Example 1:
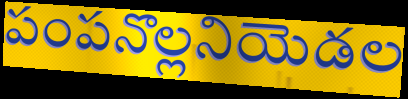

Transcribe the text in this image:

పంపనొల్లనియెడల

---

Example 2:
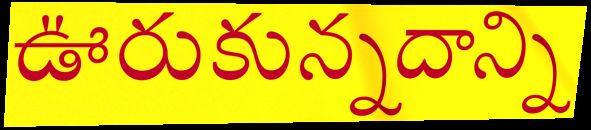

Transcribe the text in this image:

ఊరుకున్నదాన్ని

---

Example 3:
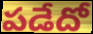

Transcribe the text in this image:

పడేదో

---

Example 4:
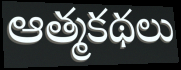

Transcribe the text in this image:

ఆత్మకథలు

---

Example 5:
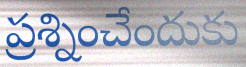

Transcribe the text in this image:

ప్రశ్నించేందుకు